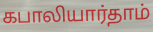
கபாலியார்தாம்